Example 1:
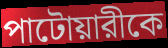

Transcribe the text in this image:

পাটোয়ারীকে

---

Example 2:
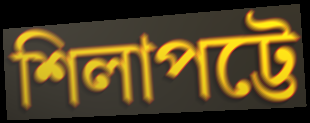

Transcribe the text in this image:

শিলাপট্টে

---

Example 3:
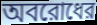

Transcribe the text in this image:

অবরোধের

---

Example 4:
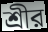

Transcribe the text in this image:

শ্রীর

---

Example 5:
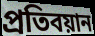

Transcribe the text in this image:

প্রতিবয়ান